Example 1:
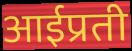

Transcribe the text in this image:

आईप्रती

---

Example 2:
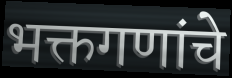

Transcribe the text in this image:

भक्तगणांचे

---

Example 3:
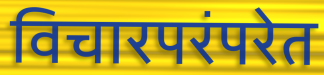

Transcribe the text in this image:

विचारपरंपरेत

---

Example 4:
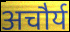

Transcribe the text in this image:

अचौर्य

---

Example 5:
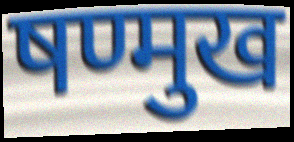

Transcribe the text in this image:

षण्मुख